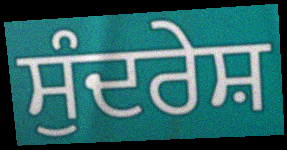
ਸੁੰਦਰੇਸ਼